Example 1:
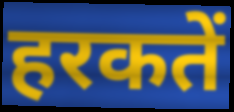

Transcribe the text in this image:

हरकतें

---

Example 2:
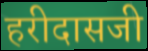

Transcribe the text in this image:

हरीदासजी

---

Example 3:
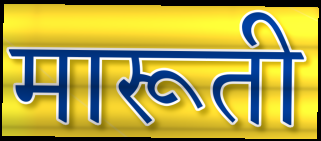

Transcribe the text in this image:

मारूती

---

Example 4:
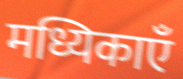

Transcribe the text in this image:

मध्यिकाएँ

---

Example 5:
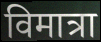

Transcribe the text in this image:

विमात्रा